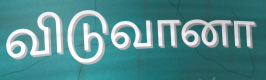
விடுவானா